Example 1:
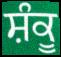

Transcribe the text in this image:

ਸ਼ੰਕੂ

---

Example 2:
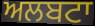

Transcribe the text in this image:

ਅਲਬਟਾ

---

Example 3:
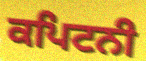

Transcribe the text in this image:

ਕਪਿਟਨੀ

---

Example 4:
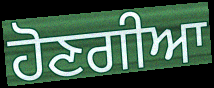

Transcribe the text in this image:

ਹੋਣਗੀਆ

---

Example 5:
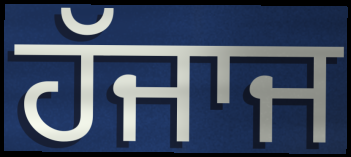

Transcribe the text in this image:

ਹੱਜਾਜ